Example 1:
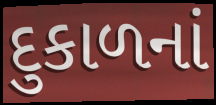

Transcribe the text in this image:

દુકાળનાં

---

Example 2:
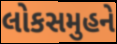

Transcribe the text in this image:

લોકસમુહને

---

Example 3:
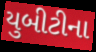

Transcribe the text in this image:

યુબીટીના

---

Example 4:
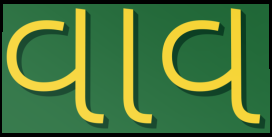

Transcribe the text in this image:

વાવ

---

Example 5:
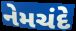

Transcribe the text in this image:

નેમચંદે